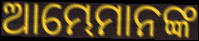
ଆମ୍ଭେମାନଙ୍କ